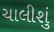
ચાલીશું